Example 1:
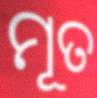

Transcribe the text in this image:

ମୂତ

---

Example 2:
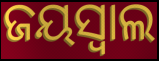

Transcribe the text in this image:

ଜୟସ୍ୱାଲ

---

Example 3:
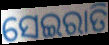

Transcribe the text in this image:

ସେଇରାତି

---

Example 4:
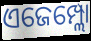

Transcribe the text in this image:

ଏଜେମ୍ପ୍ଲୋ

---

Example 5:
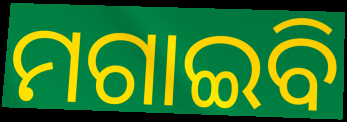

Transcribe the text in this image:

ମଗାଇବି